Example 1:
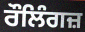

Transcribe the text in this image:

ਰੌਲਿੰਗਜ਼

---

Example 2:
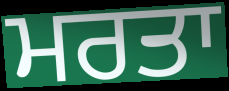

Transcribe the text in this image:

ਮਰਤਾ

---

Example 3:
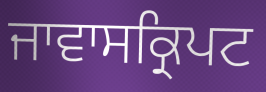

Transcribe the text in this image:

ਜਾਵਾਸਕ੍ਰਿਪਟ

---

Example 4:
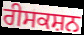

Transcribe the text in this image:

ਰੀਸਕਸ਼ਨ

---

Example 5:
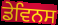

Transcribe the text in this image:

ਡੇਵਿਨਸ